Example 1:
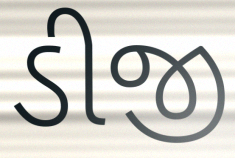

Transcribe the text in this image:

ડીજી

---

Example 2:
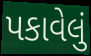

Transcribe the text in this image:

પકાવેલું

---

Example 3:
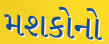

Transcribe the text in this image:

મશકોનો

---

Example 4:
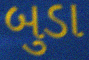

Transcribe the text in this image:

બુડા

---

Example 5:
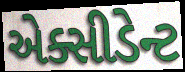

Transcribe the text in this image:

એક્સીડેન્ટ